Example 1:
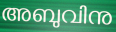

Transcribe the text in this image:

അബുവിനു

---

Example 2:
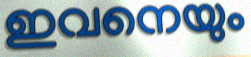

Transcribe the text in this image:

ഇവനെയും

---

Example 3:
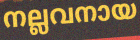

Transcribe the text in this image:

നല്ലവനായ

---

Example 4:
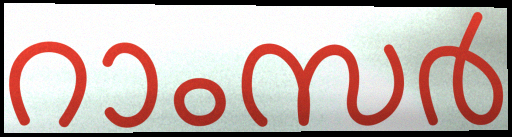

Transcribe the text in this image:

റാംസർ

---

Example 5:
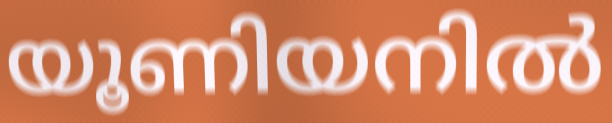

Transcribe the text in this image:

യൂണിയനിൽ